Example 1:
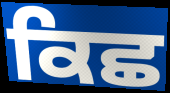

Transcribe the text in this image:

ਕਿਛ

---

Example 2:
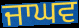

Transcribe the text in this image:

ਜਾਘਵ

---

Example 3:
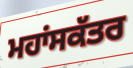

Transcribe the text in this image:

ਮਹਾਂਸਕੱਤਰ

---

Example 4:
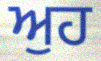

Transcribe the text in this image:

ਅੁਹ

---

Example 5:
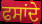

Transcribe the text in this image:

ਫਸਾਂਦੇ